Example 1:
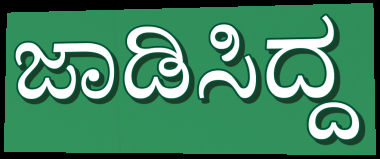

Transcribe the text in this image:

ಜಾಡಿಸಿದ್ದ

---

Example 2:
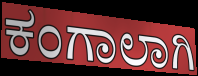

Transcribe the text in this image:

ಕಂಗಾಲಾಗಿ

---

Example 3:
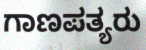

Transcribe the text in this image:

ಗಾಣಪತ್ಯರು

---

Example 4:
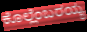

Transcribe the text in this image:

ಕೊಲ್ಲೆಂಬರಯ್ಯ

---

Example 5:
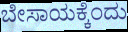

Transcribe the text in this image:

ಬೇಸಾಯಕ್ಕೆಂದು